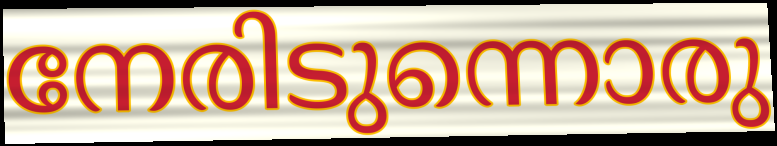
നേരിടുന്നൊരു